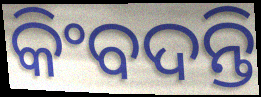
କିଂବଦନ୍ତି